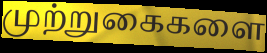
முற்றுகைகளை